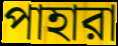
পাহারা